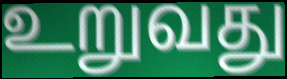
உறுவது